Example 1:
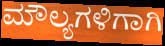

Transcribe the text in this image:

ಮೌಲ್ಯಗಳಿಗಾಗಿ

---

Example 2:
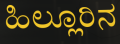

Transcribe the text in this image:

ಹಿಲ್ಲೂರಿನ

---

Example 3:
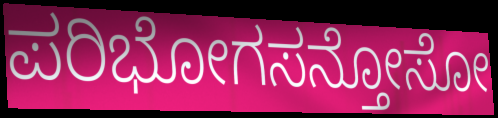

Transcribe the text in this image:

ಪರಿಭೋಗಸನ್ತೋಸೋ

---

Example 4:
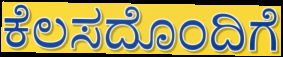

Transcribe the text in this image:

ಕೆಲಸದೊಂದಿಗೆ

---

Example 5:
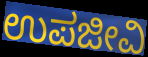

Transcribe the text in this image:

ಉಪಜೀವಿ